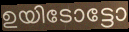
ഉയിടോട്ടോ